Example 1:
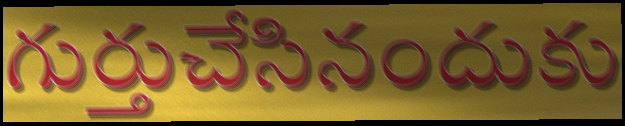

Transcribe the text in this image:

గుర్తుచేసినందుకు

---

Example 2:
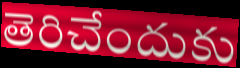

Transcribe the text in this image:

తెరిచేందుకు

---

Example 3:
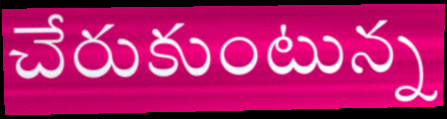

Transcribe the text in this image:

చేరుకుంటున్న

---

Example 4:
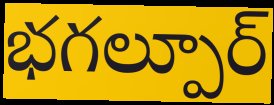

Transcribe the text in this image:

భగల్పూర్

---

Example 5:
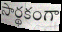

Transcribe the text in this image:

సార్థకంగా